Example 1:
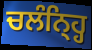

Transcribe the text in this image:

ਚਲੰਨ੍ਹ੍ਹਿ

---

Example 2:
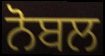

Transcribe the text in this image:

ਨੋਬਲ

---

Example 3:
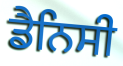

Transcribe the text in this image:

ਡੈਨਿਸੀ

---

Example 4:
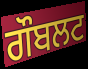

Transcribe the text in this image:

ਗੌਬਲਟ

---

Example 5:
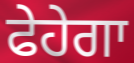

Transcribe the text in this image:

ਫੇਹੇਗਾ